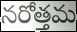
నరోత్తమ